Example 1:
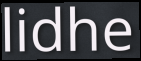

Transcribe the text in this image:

lidhe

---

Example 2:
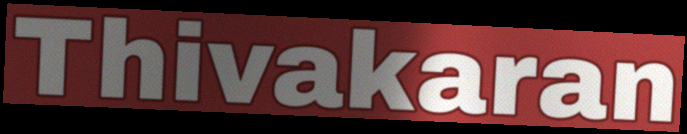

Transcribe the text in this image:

Thivakaran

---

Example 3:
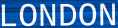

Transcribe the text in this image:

LONDON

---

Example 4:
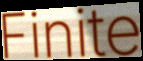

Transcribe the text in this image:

Finite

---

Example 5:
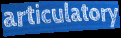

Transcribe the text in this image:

articulatory